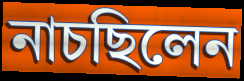
নাচছিলেন